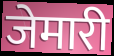
जेमारी